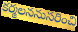
కర్మలననుసరించి